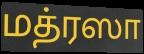
மத்ரஸா